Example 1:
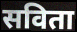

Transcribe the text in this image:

सविता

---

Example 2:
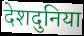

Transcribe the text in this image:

देशदुनिया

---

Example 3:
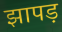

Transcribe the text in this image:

झापड़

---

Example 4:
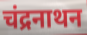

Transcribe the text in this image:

चंद्रनाथन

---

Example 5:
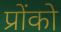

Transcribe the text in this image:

प्रोंको